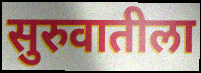
सुरुवातीला